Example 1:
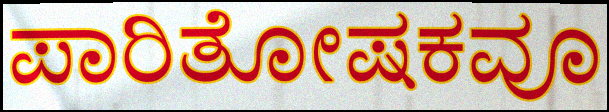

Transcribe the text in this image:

ಪಾರಿತೋಷಕವೂ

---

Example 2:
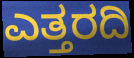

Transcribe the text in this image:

ಎತ್ತರದಿ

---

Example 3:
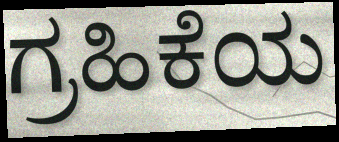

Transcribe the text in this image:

ಗ್ರಹಿಕೆಯ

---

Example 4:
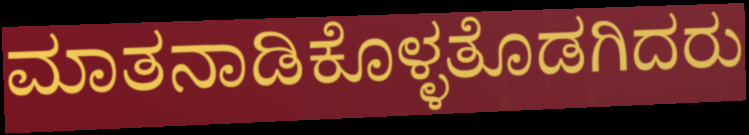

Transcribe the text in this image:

ಮಾತನಾಡಿಕೊಳ್ಳತೊಡಗಿದರು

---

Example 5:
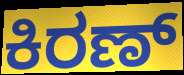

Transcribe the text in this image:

ಕಿರಣ್